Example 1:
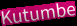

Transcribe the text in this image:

Kutumbe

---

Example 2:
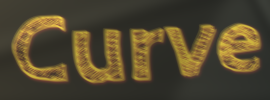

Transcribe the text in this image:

Curve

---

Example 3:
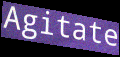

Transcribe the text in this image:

Agitate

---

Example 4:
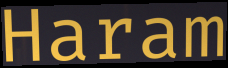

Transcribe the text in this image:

Haram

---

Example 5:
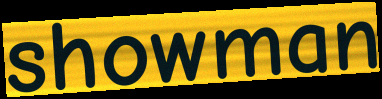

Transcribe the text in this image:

showman